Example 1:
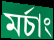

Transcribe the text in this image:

মৰ্চাং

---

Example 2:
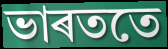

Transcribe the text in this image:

ভাৰততে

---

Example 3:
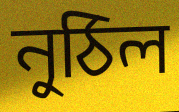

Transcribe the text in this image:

নুঠিল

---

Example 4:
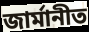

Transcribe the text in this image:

জাৰ্মানীত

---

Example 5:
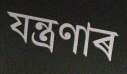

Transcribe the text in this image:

যন্ত্ৰণাৰ